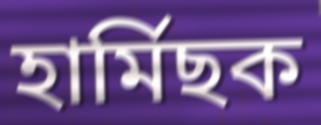
হাৰ্মিছক